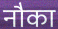
नौका